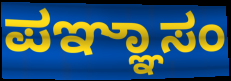
ಪಞ್ಞಾಸಂ